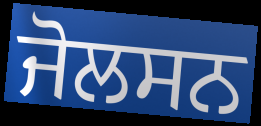
ਜੋਲਸਨ